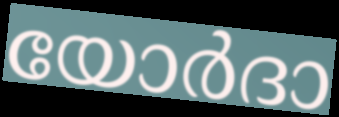
യോർദാ